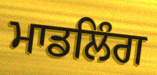
ਮਾਡਲਿੰਗ